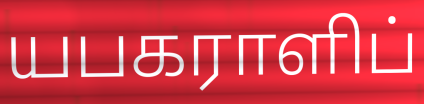
யபகராளிப்